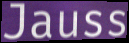
Jauss